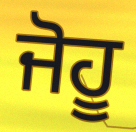
ਜੋਹੂ